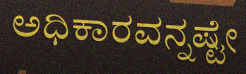
ಅಧಿಕಾರವನ್ನಷ್ಟೇ